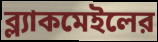
ব্ল্যাকমেইলের